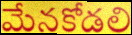
మేనకోడలి